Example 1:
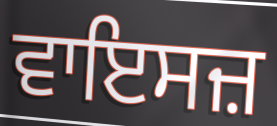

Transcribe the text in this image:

ਵਾਇਸਜ਼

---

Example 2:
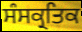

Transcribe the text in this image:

ਸੰਸਕ੍ਰਤਿਕ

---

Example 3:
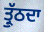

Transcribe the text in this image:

ਤ੍ਰੁੱਠਦਾ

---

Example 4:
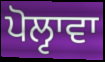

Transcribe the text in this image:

ਪੋਲ੍ਟਾਵਾ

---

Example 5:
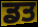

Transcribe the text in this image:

ਡਤ